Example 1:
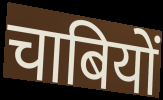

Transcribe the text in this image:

चाबियों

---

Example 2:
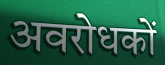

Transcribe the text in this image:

अवरोधकों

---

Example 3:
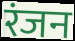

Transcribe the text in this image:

रंजन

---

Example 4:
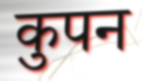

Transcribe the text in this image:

कुपन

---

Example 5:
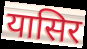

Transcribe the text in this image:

यासिर